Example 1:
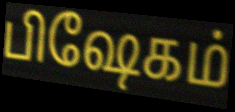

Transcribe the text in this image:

பிஷேகம்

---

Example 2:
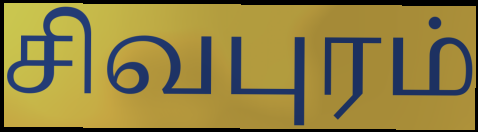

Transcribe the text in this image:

சிவபுரம்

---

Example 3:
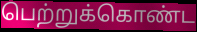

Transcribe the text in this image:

பெற்றுக்கொண்ட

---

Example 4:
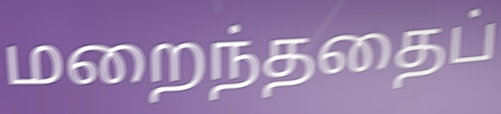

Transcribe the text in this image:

மறைந்ததைப்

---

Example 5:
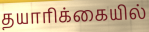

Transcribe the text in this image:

தயாரிக்கையில்